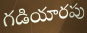
గడియారపు